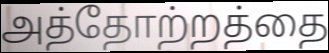
அத்தோற்றத்தை